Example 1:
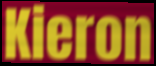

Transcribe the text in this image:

Kieron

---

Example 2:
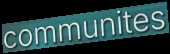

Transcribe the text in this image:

communites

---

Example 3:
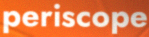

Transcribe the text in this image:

periscope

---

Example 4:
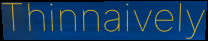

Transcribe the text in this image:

Thinnaively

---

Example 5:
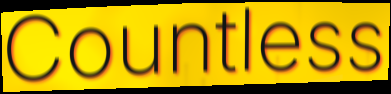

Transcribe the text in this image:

Countless